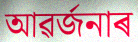
আৱৰ্জনাৰ